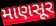
માણસૂર